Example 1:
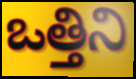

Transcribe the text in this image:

ఒత్తిని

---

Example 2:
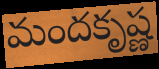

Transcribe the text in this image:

మందకృష్ణ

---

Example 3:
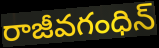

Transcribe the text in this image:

రాజీవగంధిన్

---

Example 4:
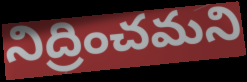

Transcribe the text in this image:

నిద్రించమని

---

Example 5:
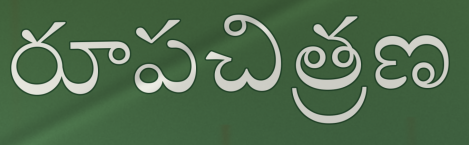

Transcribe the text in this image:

రూపచిత్రణ